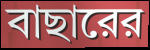
বাছারের